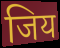
जिय